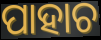
ପାହାଚ